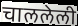
चाललेली